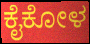
ಕೈಕೋಳ